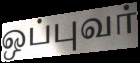
ஒப்புவர்